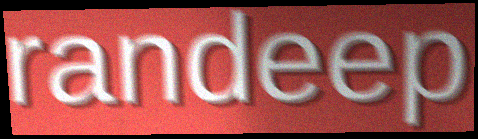
randeep